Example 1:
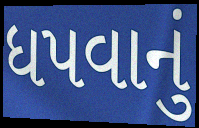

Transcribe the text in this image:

ધપવાનું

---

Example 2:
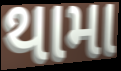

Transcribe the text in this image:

થામા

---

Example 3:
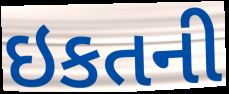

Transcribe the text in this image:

ઇકતની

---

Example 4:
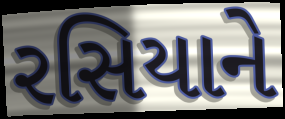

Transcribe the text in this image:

રસિયાને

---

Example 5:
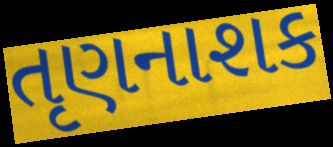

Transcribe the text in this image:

તૃણનાશક